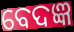
ବେଦଜ୍ଞ